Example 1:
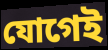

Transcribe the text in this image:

যোগেই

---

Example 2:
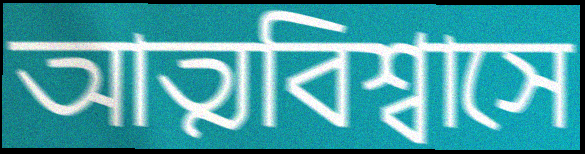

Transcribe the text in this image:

আত্মবিশ্বাসে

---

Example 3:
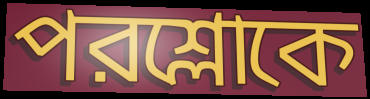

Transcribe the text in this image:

পরশ্লোকে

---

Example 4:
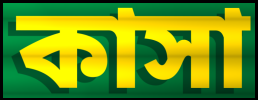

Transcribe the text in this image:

কাসা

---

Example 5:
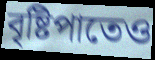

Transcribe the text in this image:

বৃষ্টিপাতেও